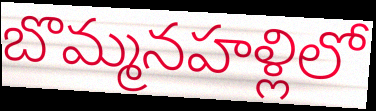
బొమ్మనహళ్లిలో